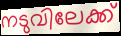
നടുവിലേക്ക്